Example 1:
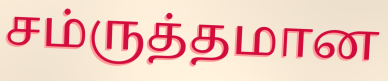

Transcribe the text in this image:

சம்ருத்தமான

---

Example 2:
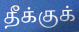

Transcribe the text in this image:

தீக்குக்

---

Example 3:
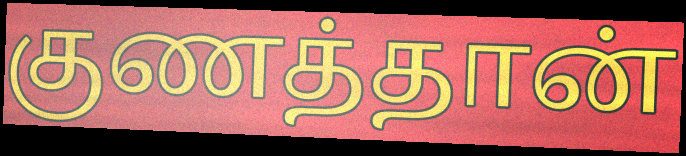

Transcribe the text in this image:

குணத்தான்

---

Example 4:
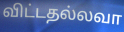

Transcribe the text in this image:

விட்டதல்லவா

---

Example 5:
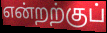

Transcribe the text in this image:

என்றற்குப்